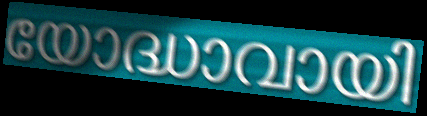
യോദ്ധാവായി